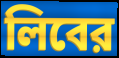
লিবের